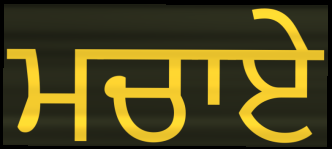
ਮਚਾਏ